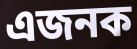
এজনক